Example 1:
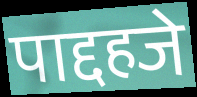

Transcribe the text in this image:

पाद्दहजे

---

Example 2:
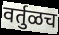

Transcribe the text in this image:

वर्तुळच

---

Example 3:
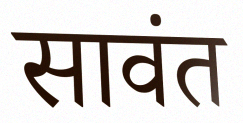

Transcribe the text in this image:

सावंत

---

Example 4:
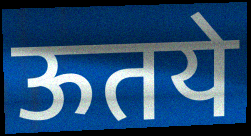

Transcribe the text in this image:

ऊतये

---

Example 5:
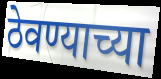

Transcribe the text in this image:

ठेवण्याच्या